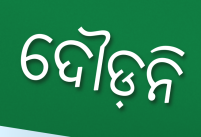
ଦୌଡ଼ନି